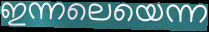
ഇന്നലെയെന്ന